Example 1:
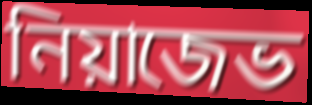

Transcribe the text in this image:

নিয়াজেভ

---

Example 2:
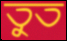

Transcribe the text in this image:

তুত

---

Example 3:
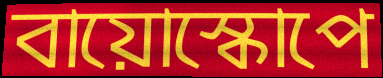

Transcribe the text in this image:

বায়োস্কোপে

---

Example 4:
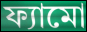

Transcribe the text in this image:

ফ্যামো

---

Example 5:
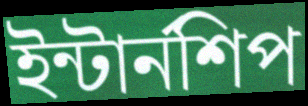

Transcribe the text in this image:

ইন্টার্নশিপ